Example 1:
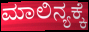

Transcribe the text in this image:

ಮಾಲಿನ್ಯಕ್ಕೆ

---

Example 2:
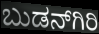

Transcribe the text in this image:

ಬುಡನ್‍ಗಿರಿ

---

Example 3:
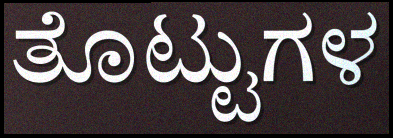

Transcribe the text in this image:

ತೊಟ್ಟುಗಳ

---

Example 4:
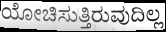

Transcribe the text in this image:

ಯೋಚಿಸುತ್ತಿರುವುದಿಲ್ಲ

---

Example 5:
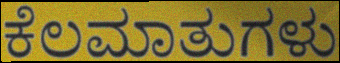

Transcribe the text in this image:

ಕೆಲಮಾತುಗಳು